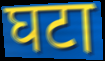
घटा